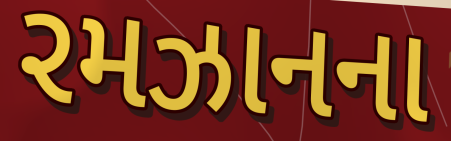
રમઝાનના